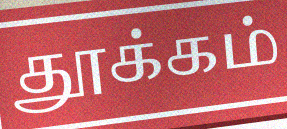
தூக்கம்